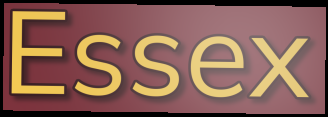
Essex